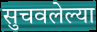
सुचवलेल्या